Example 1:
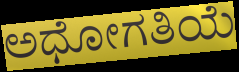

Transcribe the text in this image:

ಅಧೋಗತಿಯೆ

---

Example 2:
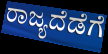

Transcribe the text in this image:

ರಾಜ್ಯದೆಡೆಗೆ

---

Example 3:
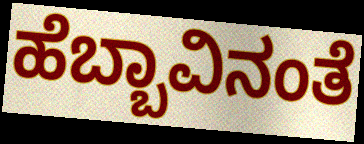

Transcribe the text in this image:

ಹೆಬ್ಬಾವಿನಂತೆ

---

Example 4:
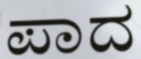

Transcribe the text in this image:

ಪಾದ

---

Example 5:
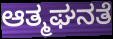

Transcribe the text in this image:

ಆತ್ಮಘನತೆ